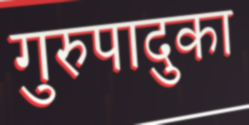
गुरुपादुका